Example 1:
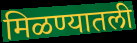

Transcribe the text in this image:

मिळण्यातली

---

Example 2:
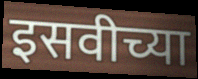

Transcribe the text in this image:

इसवीच्या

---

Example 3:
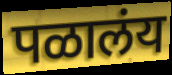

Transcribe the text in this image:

पळालंय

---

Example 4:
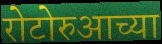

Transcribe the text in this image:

रोटोरुआच्या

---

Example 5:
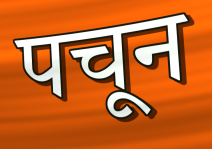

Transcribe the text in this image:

पचून